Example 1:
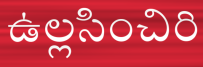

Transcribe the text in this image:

ఉల్లసించిరి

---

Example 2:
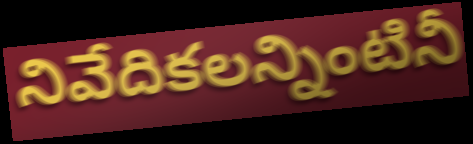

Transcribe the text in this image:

నివేదికలన్నింటినీ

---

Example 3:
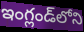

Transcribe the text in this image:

ఇంగ్లండ్‌లోని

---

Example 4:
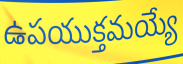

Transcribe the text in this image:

ఉపయుక్తమయ్యే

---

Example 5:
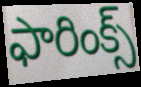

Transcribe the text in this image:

ఫారింక్స్